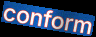
conform